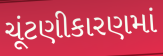
ચૂંટણીકારણમાં